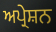
ਅਪ੍ਰੇਸ਼ਨ